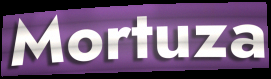
Mortuza